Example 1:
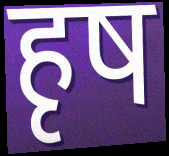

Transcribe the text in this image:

हृष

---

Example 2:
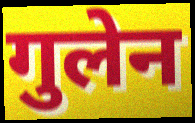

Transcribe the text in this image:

गुलेन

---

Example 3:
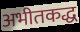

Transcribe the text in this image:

अभीतकद्ध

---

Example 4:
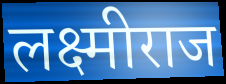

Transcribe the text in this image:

लक्ष्मीराज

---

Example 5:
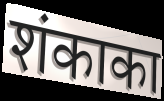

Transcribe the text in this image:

शंकाका